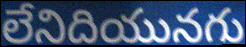
లేనిదియునగు